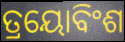
ତ୍ରୟୋବିଂଶ